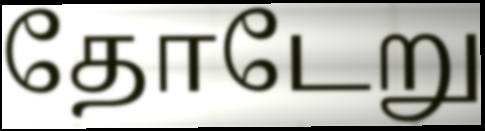
தோடேறு